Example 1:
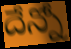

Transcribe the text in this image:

దేన్నో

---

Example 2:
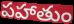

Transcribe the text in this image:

పహాతుం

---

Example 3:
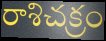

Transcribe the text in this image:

రాశిచక్రం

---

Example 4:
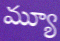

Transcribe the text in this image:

మ్యూ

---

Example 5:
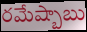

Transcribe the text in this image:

రమేష్బాబు